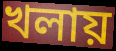
খলায়